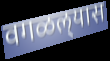
वगळल्यास